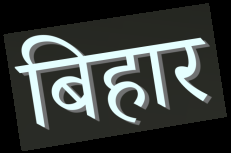
बिहार